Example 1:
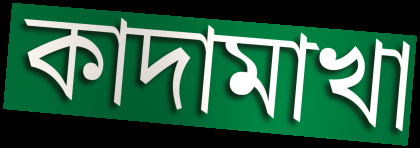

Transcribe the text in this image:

কাদামাখা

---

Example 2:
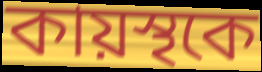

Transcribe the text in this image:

কায়স্থকে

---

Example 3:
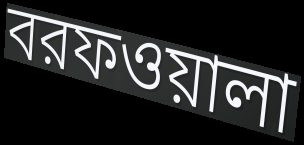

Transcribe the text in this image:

বরফওয়ালা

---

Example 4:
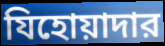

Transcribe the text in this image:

যিহোয়াদার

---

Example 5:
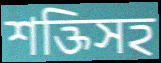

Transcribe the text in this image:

শক্তিসহ